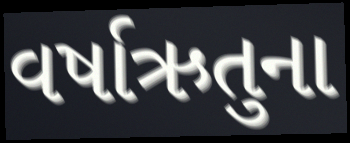
વર્ષાઋતુના